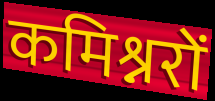
कमिश्नरों